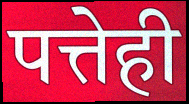
पत्तेही